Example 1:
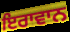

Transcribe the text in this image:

ਇਰਾਵਾਨ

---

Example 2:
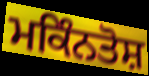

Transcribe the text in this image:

ਮਕਿੰਨਤੋਸ਼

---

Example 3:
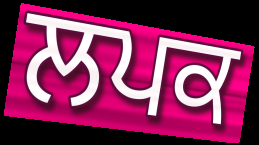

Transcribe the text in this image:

ਲਪਕ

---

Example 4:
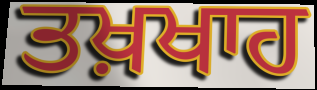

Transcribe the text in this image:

ਤਖ਼ਖਾਹ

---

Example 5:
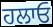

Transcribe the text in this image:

ਹਲਾਓ